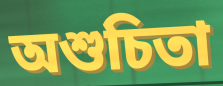
অশুচিতা